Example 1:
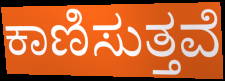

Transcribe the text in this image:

ಕಾಣಿಸುತ್ತವೆ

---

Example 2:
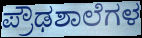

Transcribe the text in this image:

ಪ್ರೌಢಶಾಲೆಗಳ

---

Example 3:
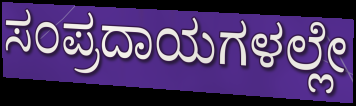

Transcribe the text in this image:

ಸಂಪ್ರದಾಯಗಳಲ್ಲೇ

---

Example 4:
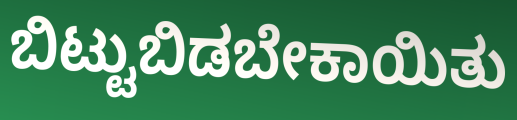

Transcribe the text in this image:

ಬಿಟ್ಟುಬಿಡಬೇಕಾಯಿತು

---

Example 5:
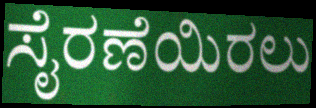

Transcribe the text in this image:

ಸೈರಣೆಯಿರಲು